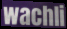
wachli